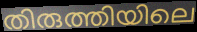
തിരുത്തിയിലെ